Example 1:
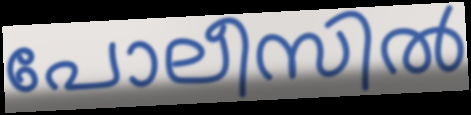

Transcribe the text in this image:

പോലീസിൽ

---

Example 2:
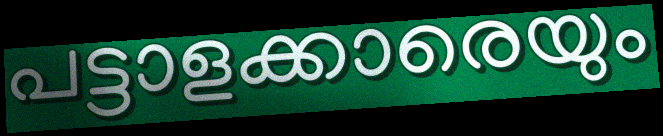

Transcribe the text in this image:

പട്ടാളക്കാരെയും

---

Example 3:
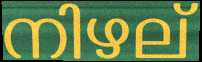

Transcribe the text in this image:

നിഴല്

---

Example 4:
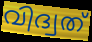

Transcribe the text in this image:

വിദ്വത്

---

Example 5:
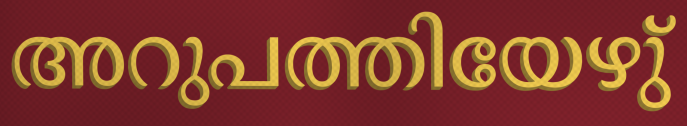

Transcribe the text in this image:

അറുപത്തിയേഴു്